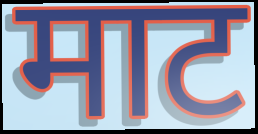
माट